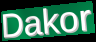
Dakor